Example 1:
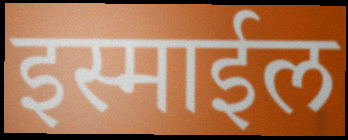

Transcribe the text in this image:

इस्माईल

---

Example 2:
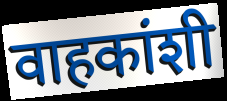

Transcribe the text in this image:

वाहकांशी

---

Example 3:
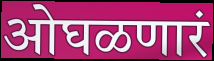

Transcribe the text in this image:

ओघळणारं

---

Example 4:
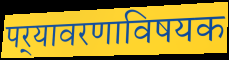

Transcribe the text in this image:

पर्यावरणाविषयक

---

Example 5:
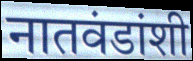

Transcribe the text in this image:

नातवंडांशी